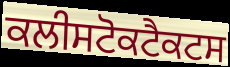
ਕਲੀਸਟੋਕਟੈਕਟਸ